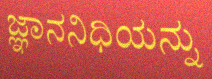
ಜ್ಞಾನನಿಧಿಯನ್ನು